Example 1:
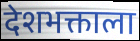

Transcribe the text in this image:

देशभक्ताला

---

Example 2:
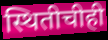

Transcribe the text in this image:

स्थितीचीही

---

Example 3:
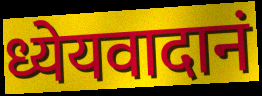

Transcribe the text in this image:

ध्येयवादानं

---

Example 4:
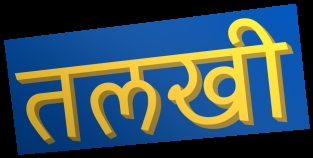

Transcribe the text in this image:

तलखी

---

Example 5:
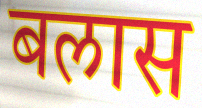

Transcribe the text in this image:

बलास